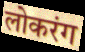
लोकरंग